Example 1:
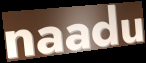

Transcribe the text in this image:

naadu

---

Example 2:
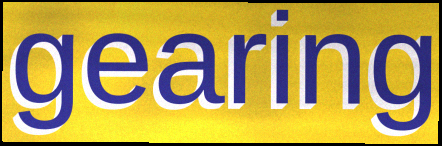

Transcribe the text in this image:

gearing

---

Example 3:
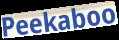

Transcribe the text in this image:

Peekaboo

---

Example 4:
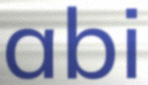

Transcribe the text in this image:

abi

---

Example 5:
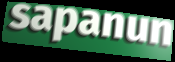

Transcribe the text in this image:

sapanun